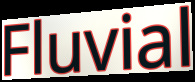
Fluvial